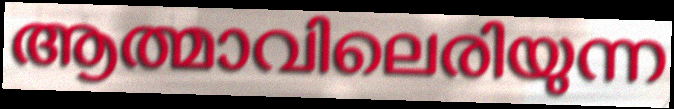
ആത്മാവിലെരിയുന്ന